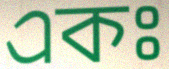
একঃ